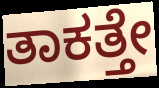
ತಾಕತ್ತೇ